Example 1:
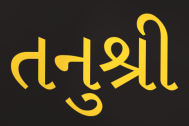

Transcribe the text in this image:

તનુશ્રી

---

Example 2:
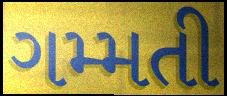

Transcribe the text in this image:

ગમ્મતી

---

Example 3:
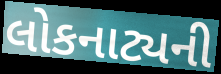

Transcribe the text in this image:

લોકનાટ્યની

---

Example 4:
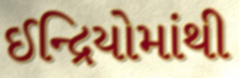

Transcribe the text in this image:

ઈન્દ્રિયોમાંથી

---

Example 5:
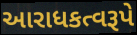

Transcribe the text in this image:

આરાધકત્વરૂપે